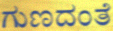
ಗುಣದಂತೆ